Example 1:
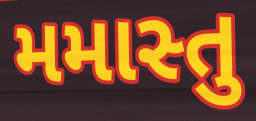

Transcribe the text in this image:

મમાસ્તુ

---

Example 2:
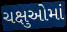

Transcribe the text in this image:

ચક્ષુઓમાં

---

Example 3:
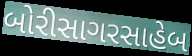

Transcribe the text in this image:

બોરીસાગરસાહેબ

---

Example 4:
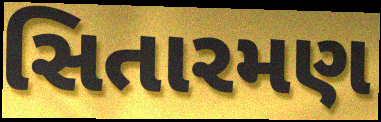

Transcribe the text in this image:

સિતારમણ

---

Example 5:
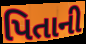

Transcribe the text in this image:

પિતાની